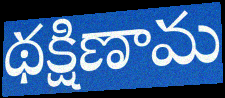
థక్షిణామ